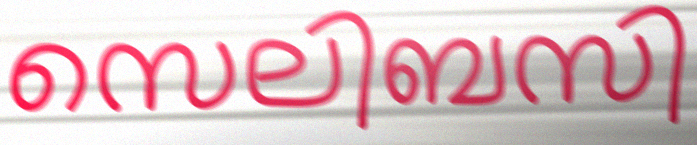
സെലിബസി